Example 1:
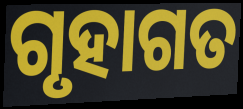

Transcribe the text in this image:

ଗୃହାଗତ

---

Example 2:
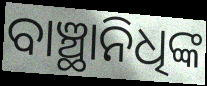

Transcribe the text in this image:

ବାଞ୍ଛାନିଧିଙ୍କ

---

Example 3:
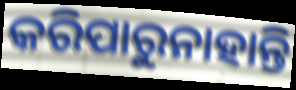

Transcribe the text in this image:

କରିପାରୁନାହାନ୍ତି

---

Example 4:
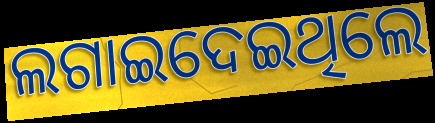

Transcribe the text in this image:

ଲଗାଇଦେଇଥିଲେ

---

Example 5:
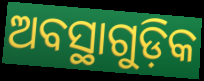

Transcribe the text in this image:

ଅବସ୍ଥାଗୁଡ଼ିକ